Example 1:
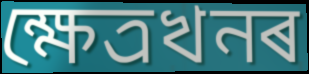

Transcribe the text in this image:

ক্ষেত্ৰখনৰ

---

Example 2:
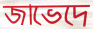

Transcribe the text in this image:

জাভেদে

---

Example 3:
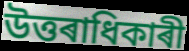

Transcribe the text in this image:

উত্তৰাধিকাৰী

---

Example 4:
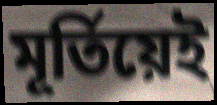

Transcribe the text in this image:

মূৰ্তিয়েই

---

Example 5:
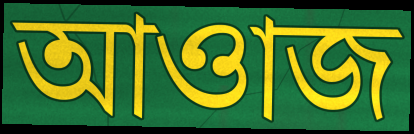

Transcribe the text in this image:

আওাজ